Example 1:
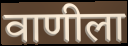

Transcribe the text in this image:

वाणीला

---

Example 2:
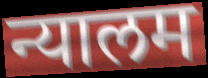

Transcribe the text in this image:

न्यालम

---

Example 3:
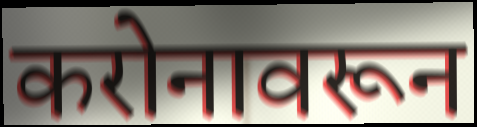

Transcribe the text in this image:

करोनावरून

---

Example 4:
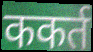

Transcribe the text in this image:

ककर्त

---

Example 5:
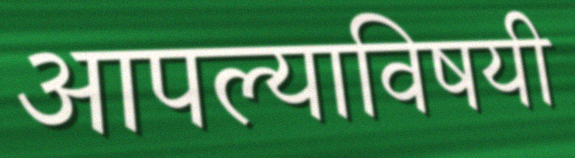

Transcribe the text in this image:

आपल्याविषयी